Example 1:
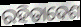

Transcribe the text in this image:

ରହିତାଦେଶ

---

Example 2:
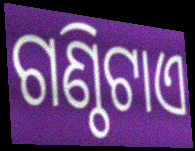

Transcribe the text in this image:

ଗଣ୍ଠିଟାଏ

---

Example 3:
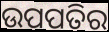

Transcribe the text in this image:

ଉପପତିର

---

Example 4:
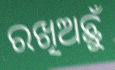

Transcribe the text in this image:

ରଖିଅଛୁଁ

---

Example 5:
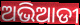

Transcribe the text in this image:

ଅଭିଆଡୀ